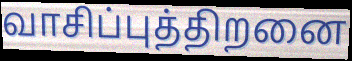
வாசிப்புத்திறனை